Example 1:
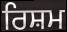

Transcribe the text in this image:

ਰਿਸ਼ਮ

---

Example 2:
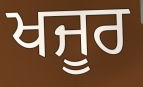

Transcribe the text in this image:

ਖਜੂਰ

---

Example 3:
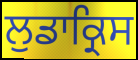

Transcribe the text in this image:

ਲੁਡਾਕ੍ਰਿਸ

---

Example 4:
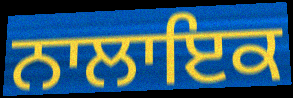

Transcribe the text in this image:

ਨਾਲਾਇਕ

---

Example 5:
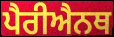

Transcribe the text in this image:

ਪੈਰੀਐਨਥ